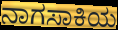
ನಾಗಸಾಕಿಯ